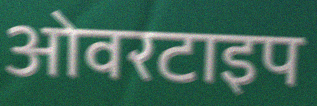
ओवरटाइप